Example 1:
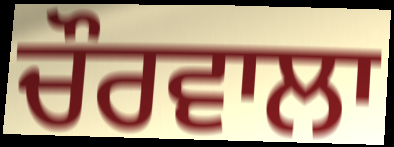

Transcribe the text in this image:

ਚੌਰਵਾਲਾ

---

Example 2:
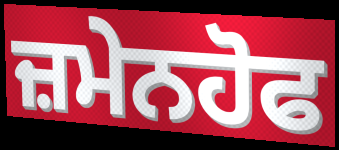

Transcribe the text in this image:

ਜ਼ਮੇਨਹੋਫ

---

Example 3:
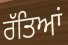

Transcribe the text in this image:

ਰੱਤਿਆਂ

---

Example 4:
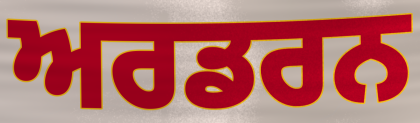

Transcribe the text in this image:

ਅਰਡਰਨ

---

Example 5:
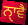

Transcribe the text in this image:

ਨੑਾਵੈ